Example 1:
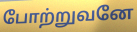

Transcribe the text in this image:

போற்றுவனே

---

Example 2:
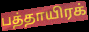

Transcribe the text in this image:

பத்தாயிரக்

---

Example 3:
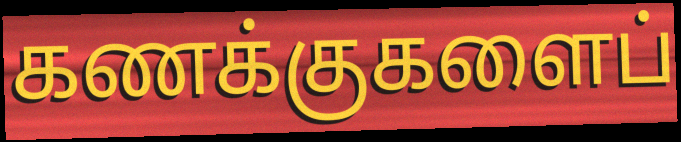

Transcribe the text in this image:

கணக்குகளைப்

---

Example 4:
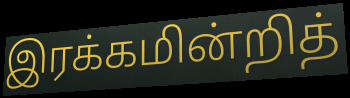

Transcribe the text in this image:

இரக்கமின்றித்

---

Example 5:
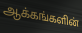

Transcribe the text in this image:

ஆக்கங்களின்